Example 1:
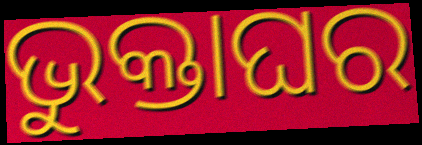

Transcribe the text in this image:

ଭୁକ୍ତାଘର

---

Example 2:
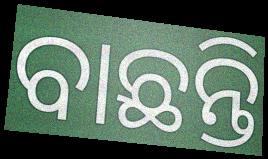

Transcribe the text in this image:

ବାଛନ୍ତି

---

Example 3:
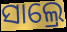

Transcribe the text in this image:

ସାଲ୍ରେ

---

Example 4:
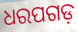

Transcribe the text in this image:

ଧରପଗଡ଼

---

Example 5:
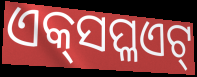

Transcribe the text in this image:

ଏକ୍‍ସପ୍ଳଏଟ୍